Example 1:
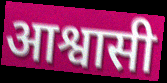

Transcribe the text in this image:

आश्वासी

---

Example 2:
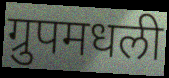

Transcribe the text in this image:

ग्रुपमधली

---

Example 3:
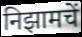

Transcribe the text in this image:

निझामचें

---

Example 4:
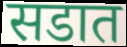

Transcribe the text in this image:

सडात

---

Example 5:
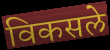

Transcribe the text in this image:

विकसले